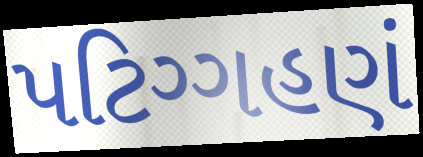
પટિગ્ગહણં